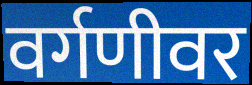
वर्गणीवर